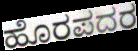
ಹೊರಪದರ